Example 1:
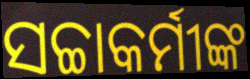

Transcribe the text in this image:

ସଚ୍ଚାକର୍ମୀଙ୍କ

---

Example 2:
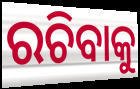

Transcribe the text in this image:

ରଚିବାକୁ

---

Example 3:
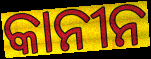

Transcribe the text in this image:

କାନୀନ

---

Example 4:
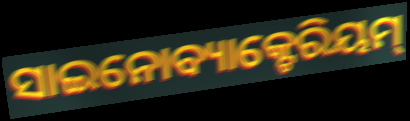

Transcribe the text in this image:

ସାଇନୋବ୍ୟାକ୍ଟେରିୟମ୍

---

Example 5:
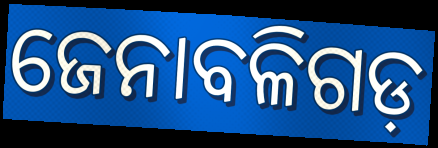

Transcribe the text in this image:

ଜେନାବଳିଗଡ଼